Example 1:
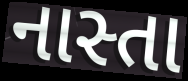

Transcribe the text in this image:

નાસ્તા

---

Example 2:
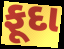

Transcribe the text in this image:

ફૂદા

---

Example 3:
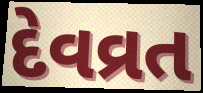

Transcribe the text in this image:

દેવવ્રત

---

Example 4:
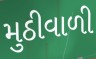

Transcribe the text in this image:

મુઠીવાળી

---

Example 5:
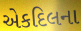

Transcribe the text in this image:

એકદિલના